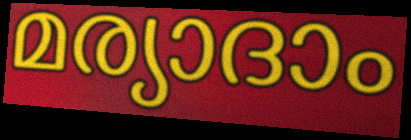
മര്യാദാം